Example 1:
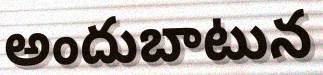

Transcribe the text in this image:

అందుబాటున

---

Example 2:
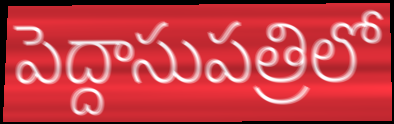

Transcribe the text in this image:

పెద్దాసుపత్రిలో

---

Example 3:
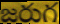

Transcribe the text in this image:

జరుగ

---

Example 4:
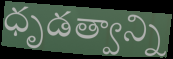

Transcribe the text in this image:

ధృడత్వాన్ని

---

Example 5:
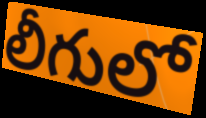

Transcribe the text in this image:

లీగులో